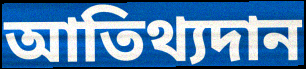
আতিথ্যদান